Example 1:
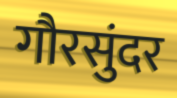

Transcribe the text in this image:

गौरसुंदर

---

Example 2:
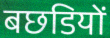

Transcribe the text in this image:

बछडियों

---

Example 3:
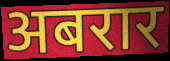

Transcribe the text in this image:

अबरार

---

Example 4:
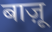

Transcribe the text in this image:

बाज़ू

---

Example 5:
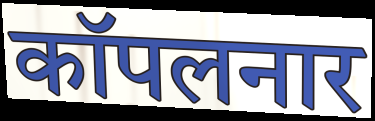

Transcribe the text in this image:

कॉपलनार